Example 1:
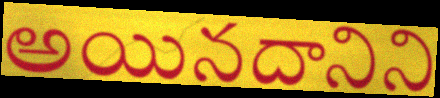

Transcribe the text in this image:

అయినదానిని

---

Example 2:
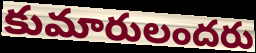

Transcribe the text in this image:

కుమారులందరు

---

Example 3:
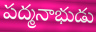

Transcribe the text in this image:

పద్మనాభుడు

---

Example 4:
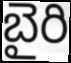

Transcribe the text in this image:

బైరి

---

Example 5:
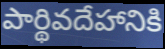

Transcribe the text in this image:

పార్థివదేహానికి